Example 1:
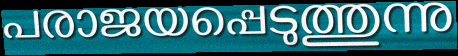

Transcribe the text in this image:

പരാജയപ്പെടുത്തുന്നു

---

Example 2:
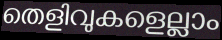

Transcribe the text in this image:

തെളിവുകളെല്ലാം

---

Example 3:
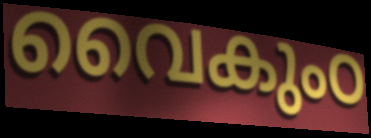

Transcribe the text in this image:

വൈകുംഠ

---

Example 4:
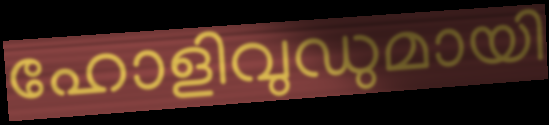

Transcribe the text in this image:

ഹോളിവുഡുമായി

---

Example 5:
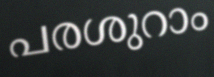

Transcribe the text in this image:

പരശുറാം